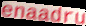
enaadru